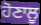
ਹੋਣਾਲੂ